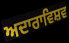
ਅਦਾਰਾਵਿਸ਼ਵ